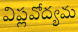
విప్లవోద్యమ